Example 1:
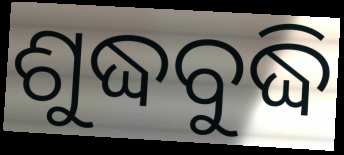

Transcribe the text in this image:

ଶୁଦ୍ଧବୁଦ୍ଧି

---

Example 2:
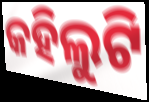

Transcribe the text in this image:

କହିଲୁଟି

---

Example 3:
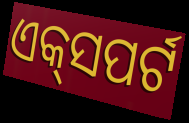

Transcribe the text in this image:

ଏକ୍‌ସପର୍ଟ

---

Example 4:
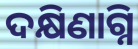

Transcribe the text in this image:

ଦକ୍ଷିଣାଗ୍ନି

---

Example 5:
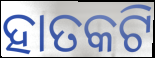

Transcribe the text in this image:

ହାତକଟି